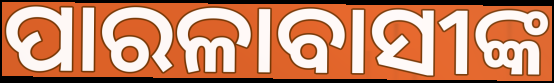
ପାରଳାବାସୀଙ୍କ